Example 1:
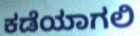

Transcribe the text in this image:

ಕಡೆಯಾಗಲಿ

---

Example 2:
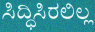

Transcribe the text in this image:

ಸಿದ್ಧಿಸಿರಲಿಲ್ಲ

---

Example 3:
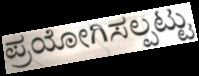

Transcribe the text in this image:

ಪ್ರಯೋಗಿಸಲ್ಪಟ್ಟು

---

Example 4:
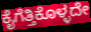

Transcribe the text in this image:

ಕೈಗೆತ್ತಿಕೊಳ್ಳದೇ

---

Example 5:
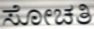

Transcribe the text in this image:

ಸೋಚತಿ